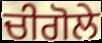
ਚੀਗੋਲੇ